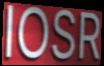
IOSR